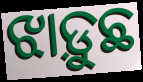
ଝାଡ଼ୁଛ